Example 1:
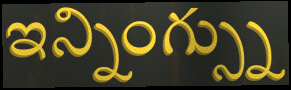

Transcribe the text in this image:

ఇన్నింగ్స్ను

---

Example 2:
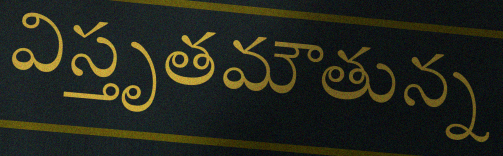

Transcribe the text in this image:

విస్తృతమౌతున్న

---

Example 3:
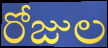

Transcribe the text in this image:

రోజుల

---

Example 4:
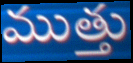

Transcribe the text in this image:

ముత్తు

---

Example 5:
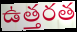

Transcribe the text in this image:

ఉత్తరత